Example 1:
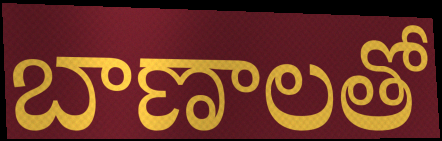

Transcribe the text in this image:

బాణాలతో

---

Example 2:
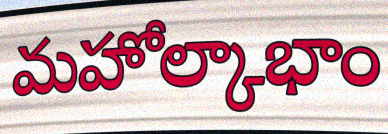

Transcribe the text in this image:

మహోల్కాభాం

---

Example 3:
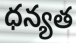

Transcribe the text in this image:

ధన్యత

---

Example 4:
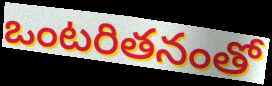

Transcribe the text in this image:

ఒంటరితనంతో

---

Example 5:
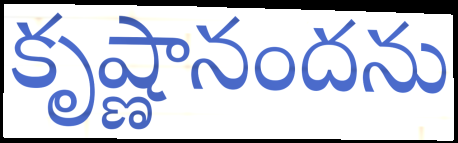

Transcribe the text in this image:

కృష్ణానందను